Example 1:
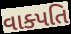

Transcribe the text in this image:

વાક્પતિ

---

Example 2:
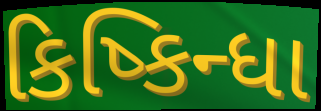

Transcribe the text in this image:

કિષ્કિન્ધા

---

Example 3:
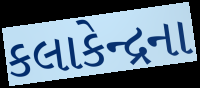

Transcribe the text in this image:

કલાકેન્દ્રના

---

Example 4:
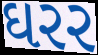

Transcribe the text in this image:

ઘરર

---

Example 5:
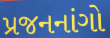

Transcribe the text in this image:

પ્રજનનાંગો